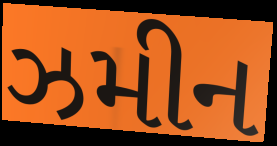
ઝમીન